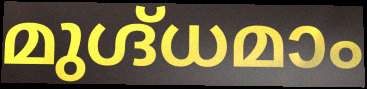
മുഗ്ദ്ധമാം